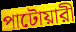
পাটোয়ারী